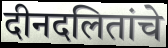
दीनदलितांचे